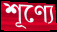
শূণ্যে